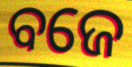
ବଜେ